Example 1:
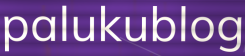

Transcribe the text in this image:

palukublog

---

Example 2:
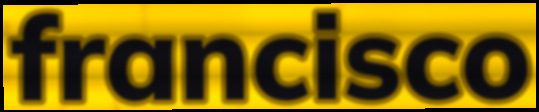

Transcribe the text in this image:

francisco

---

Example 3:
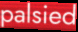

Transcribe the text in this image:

palsied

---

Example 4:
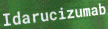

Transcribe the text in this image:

Idarucizumab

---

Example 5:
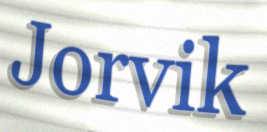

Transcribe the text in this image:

Jorvik